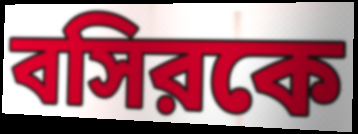
বসিরকে